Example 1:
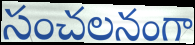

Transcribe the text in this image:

సంచలనంగా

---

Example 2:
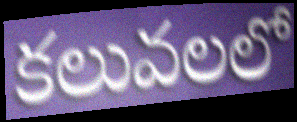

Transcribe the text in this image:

కలువలలో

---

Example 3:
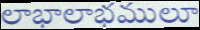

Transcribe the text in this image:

లాభాలాభములూ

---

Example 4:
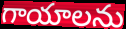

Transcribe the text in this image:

గాయాలను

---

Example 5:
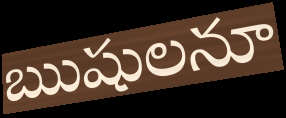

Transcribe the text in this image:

ఋషులనూ